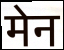
मेन